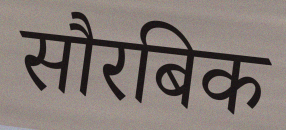
सौरबिक